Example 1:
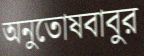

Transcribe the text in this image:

অনুতোষবাবুর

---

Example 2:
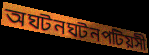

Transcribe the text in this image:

অঘটনঘটনপটিয়সী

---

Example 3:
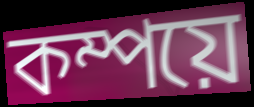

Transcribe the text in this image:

কম্পয়ে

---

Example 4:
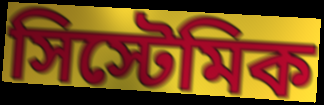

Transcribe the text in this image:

সিস্টেমিক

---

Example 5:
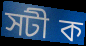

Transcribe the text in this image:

সটীক